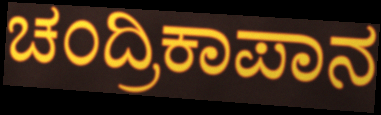
ಚಂದ್ರಿಕಾಪಾನ